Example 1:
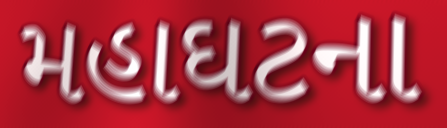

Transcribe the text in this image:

મહાઘટના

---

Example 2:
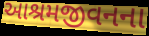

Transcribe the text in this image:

આશ્રમજીવનના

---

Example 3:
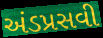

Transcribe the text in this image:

અંડપ્રસવી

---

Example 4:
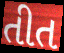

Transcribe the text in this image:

તીત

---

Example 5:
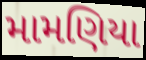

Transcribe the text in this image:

મામણિયા